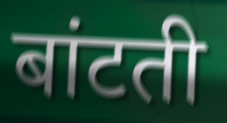
बांटती